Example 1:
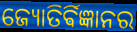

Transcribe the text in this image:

ଜ୍ୟୋତିର୍ଵିଜ୍ଞାନର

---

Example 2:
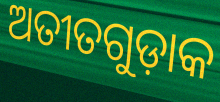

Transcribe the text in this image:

ଅତୀତଗୁଡ଼ାକ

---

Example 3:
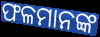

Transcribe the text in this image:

ଫଳମାନଙ୍କ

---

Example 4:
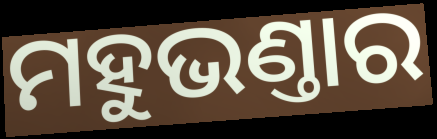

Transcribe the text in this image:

ମହୁଭଣ୍ତାର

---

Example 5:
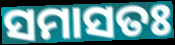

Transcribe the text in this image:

ସମାସତଃ